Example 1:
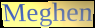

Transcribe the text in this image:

Meghen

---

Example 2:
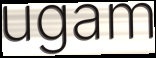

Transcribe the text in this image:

ugam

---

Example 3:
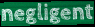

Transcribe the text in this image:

negligent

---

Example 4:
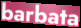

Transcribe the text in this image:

barbata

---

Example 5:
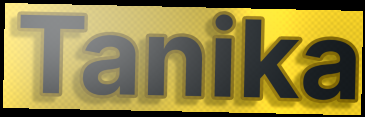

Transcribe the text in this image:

Tanika